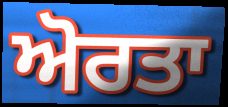
ਅੋਰਤਾ